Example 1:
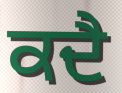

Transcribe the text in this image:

ਕਦੈ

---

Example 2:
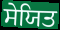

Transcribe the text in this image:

ਸੇਯਿਤ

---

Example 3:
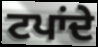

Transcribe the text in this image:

ਟਪਾਂਦੇ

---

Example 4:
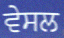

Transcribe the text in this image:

ਵੇਸਲ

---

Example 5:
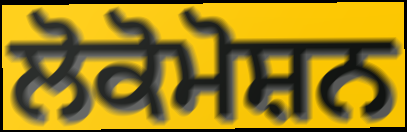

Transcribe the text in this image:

ਲੋਕੋਮੋਸ਼ਨ